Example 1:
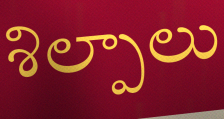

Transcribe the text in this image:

శిల్పాలు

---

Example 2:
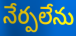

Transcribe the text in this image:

నేర్పలేను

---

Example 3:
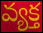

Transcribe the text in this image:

వ్యక్త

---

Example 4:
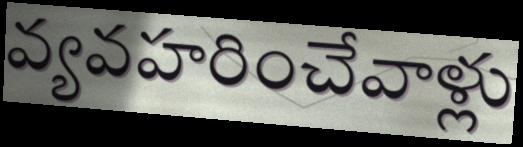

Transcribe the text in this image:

వ్యవహరించేవాళ్లు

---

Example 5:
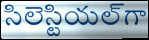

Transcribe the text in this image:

సిలెస్టియల్‌గా